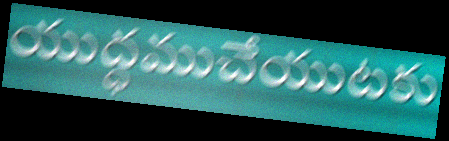
యుద్ధముచేయుటకు